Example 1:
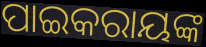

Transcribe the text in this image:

ପାଇକରାୟଙ୍କ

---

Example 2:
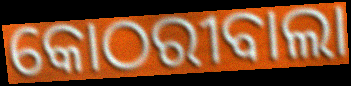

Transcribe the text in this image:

କୋଠରୀବାଲା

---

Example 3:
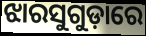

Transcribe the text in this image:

ଝାରସୁଗୁଡ଼ାରେ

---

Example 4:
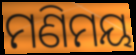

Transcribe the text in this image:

ମଣିମୟ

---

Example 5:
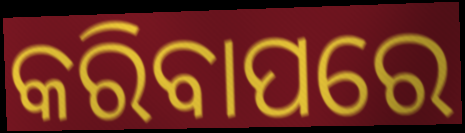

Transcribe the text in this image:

କରିବାପରେ